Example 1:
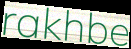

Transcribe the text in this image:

rakhbe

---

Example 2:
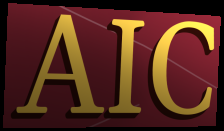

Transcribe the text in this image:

AIC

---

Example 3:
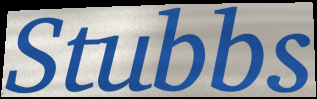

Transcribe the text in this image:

Stubbs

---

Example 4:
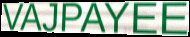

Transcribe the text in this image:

VAJPAYEE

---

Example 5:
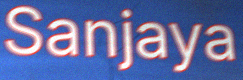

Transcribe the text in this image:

Sanjaya